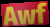
Awf